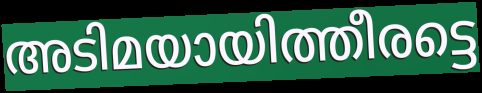
അടിമയായിത്തീരട്ടെ